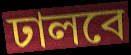
ঢালবে